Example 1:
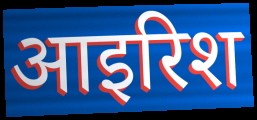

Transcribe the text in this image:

आइरिश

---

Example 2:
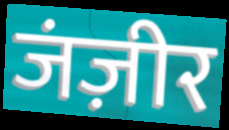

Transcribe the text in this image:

जंज़ीर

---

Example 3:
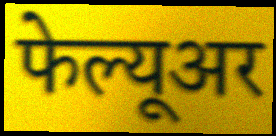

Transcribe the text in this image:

फेल्यूअर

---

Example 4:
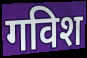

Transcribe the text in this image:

गविश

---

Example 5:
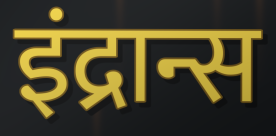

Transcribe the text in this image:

इंद्रान्स